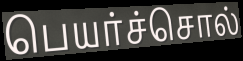
பெயர்ச்சொல்